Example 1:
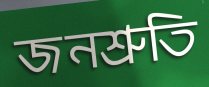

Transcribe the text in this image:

জনশ্ৰুতি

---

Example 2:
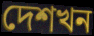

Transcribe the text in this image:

দেশখন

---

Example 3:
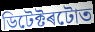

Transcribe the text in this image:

ডিটেক্টৰটোত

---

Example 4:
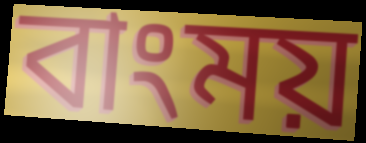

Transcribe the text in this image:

বাংময়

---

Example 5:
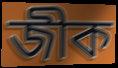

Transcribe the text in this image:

জীক